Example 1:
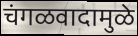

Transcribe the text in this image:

चंगळवादामुळे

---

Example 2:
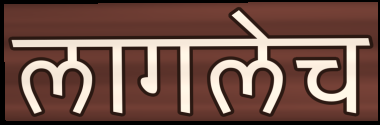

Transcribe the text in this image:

लागलेच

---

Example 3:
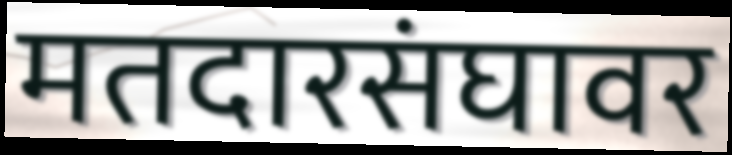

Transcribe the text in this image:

मतदारसंघावर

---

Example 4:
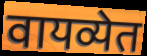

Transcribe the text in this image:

वायव्येत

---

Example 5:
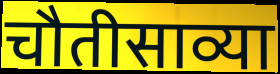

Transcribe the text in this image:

चौतीसाव्या